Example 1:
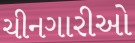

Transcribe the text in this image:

ચીનગારીઓ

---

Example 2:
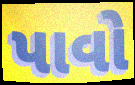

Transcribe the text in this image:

પાવો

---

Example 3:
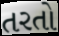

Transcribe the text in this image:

તરતો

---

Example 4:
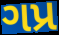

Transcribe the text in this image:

ગપ્ર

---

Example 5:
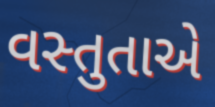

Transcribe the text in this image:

વસ્તુતાએ